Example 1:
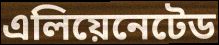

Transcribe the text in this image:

এলিয়েনেটেড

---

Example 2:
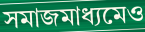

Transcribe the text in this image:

সমাজমাধ্যমেও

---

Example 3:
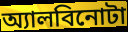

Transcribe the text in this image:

অ্যালবিনোটা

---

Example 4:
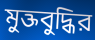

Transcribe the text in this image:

মুক্তবুদ্ধির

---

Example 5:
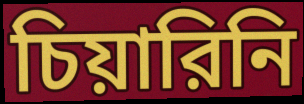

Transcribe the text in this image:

চিয়ারিনি